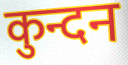
कुन्‍दन